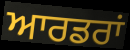
ਆਰਡਰਾਂ